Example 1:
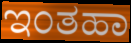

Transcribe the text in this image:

ಇಂತಹಾ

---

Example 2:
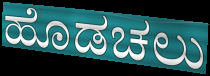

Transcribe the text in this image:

ಹೊಡಚಲು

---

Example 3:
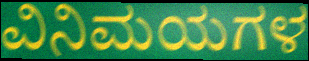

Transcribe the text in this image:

ವಿನಿಮಯಗಳ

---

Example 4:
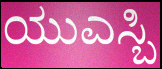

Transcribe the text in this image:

ಯುಎಸ್ಬಿ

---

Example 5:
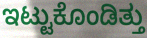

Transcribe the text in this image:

ಇಟ್ಟುಕೊಂಡಿತ್ತು